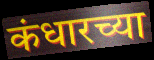
कंधारच्या